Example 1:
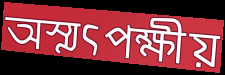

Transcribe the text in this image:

অস্মৎপক্ষীয়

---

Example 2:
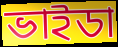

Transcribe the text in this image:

ভাইডা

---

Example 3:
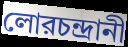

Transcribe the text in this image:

লোরচন্দ্রানী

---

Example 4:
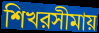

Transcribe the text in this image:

শিখরসীমায়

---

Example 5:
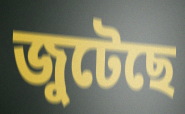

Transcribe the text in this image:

জুটেছে